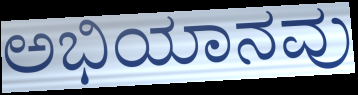
ಅಭಿಯಾನವು